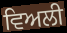
ਵਿਅਲੀ